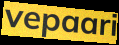
vepaari